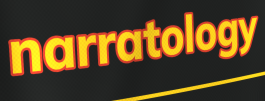
narratology